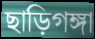
ছাড়িগঙ্গা